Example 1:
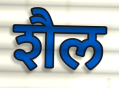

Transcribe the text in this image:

शैल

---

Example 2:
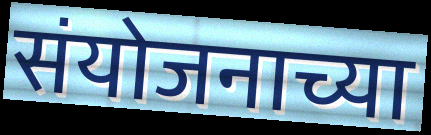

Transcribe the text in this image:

संयोजनाच्या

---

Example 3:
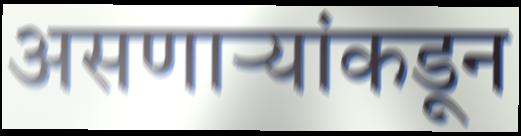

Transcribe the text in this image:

असणाऱ्यांकडून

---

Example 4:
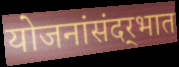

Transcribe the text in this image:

योजनांसंदर्भात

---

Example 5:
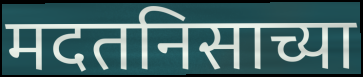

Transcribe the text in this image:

मदतनिसाच्या